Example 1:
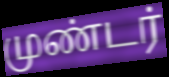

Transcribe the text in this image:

முண்டர்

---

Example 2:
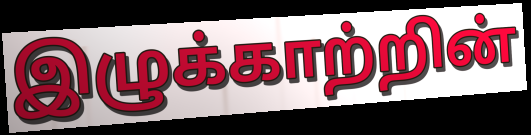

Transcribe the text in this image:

இழுக்காற்றின்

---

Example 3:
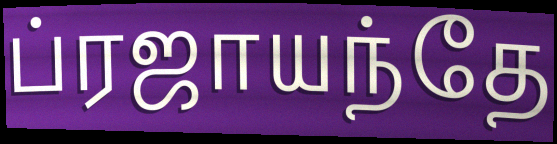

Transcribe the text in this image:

ப்ரஜாயந்தே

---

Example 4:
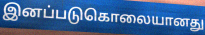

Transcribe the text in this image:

இனப்படுகொலையானது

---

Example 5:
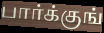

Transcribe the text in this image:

பார்க்குங்